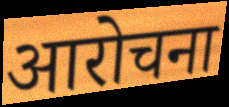
आरोचना